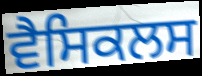
ਵੈਸਿਕਲਸ